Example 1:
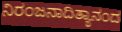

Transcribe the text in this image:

ನಿರಂಜನಾದಿತ್ಯಾನಂದ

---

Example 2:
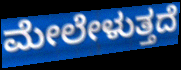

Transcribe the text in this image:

ಮೇಲೇಳುತ್ತದೆ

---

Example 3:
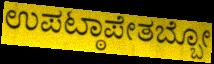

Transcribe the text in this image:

ಉಪಟ್ಠಾಪೇತಬ್ಬೋ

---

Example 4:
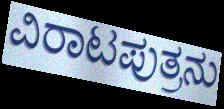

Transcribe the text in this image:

ವಿರಾಟಪುತ್ರನು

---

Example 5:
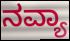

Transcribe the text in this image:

ನವ್ಯಾ